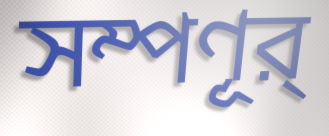
সম্পণূর্